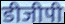
डीजीपी